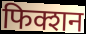
फिक्‍शन